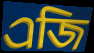
এজি